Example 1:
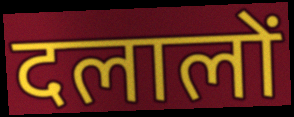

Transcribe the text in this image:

दलालों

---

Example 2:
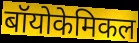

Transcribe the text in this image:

बॉयोकेमिकल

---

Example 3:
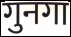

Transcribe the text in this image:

गुनगा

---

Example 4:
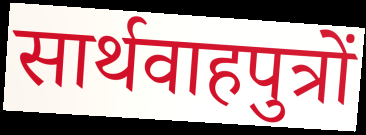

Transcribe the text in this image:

सार्थवाहपुत्रों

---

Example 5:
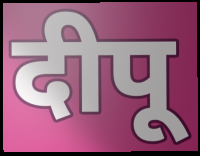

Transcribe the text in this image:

दीपू